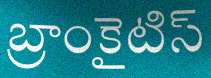
బ్రాంకైటిస్